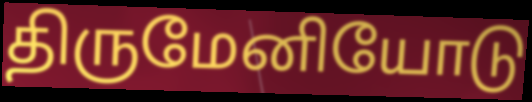
திருமேனியோடு